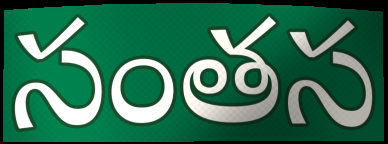
సంతస